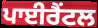
ਪਾਈਰੈਂਟਲ